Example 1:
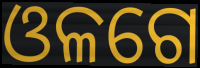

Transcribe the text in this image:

ଓଳଗେ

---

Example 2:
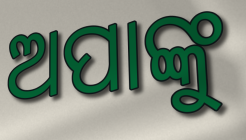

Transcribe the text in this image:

ଅପାଙ୍କୁ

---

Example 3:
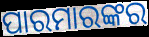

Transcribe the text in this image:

ପାରମାରଙ୍କର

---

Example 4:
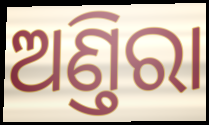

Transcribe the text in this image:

ଅଣ୍ତିରା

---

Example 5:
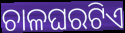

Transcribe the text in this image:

ଚାଳଘରଟିଏ